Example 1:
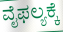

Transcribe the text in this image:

ವೈಫಲ್ಯಕ್ಕೆ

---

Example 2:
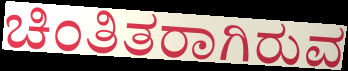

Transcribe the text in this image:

ಚಿಂತಿತರಾಗಿರುವ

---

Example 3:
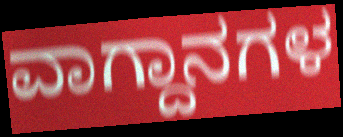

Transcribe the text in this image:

ವಾಗ್ದಾನಗಳ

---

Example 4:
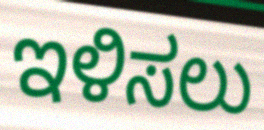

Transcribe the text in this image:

ಇಳಿಸಲು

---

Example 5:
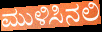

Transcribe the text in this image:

ಮುಳಿಸಿನಲಿ